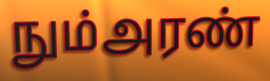
நும்அரண்